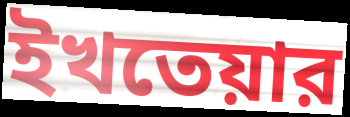
ইখতেয়ার